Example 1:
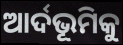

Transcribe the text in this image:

ଆର୍ଦଭୂମିକୁ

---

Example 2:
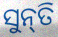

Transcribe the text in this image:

ସୁନ୍‌ତି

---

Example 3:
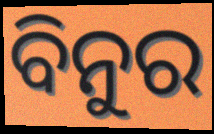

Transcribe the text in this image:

ବିନୁର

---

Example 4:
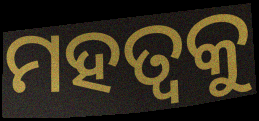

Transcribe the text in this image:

ମହତ୍ଵକୁ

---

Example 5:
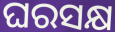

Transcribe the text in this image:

ଘରସକ୍ଷ